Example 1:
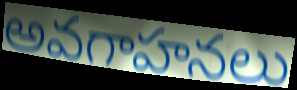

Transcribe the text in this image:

అవగాహనలు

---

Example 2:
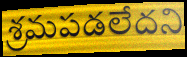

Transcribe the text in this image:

శ్రమపడలేదని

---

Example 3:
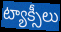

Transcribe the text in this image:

ట్యాక్సీలు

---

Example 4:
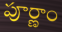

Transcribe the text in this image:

పూర్ణాం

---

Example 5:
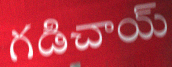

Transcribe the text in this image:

గడిచాయ్